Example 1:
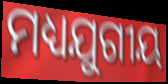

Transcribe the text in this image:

ମଧ୍ଯଯୁଗୀୟ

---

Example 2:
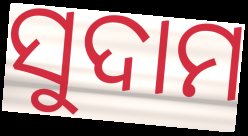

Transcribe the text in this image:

ସୁଦାମ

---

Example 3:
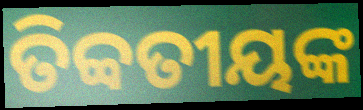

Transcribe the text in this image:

ତିବ୍ବତୀୟଙ୍କ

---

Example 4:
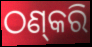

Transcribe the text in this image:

ଠଣ୍‌କରି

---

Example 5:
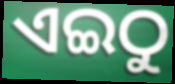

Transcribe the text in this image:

ଏଇଠୁ